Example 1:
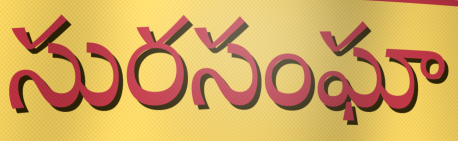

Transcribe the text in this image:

సురసంఘా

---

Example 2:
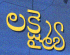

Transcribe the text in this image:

లక్ష్మ్యై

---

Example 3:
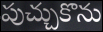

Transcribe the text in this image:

పుచ్చుకొను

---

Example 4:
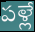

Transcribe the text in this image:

పళ్లే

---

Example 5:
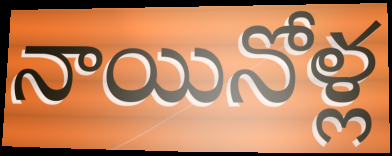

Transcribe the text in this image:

నాయినోళ్ల